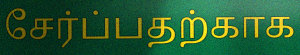
சேர்ப்பதற்காக